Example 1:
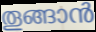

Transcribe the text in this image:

തൂങ്ങാൻ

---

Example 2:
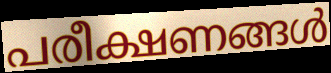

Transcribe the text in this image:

പരീക്ഷണങ്ങൾ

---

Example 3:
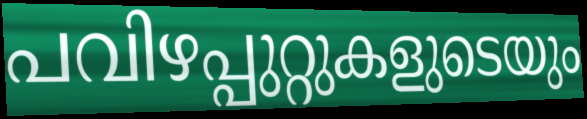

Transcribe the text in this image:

പവിഴപ്പുറ്റുകളുടെയും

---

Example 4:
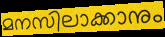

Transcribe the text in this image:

മനസിലാക്കാനും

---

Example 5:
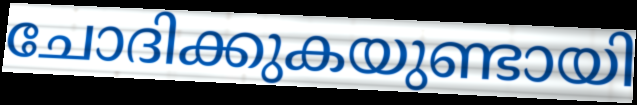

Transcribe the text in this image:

ചോദിക്കുകയുണ്ടായി